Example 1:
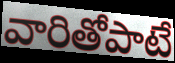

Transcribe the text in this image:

వారితోపాటే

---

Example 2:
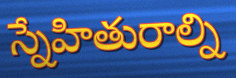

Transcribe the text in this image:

స్నేహితురాల్ని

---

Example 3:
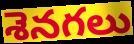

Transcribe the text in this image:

శెనగలు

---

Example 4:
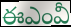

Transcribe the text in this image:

ఈఎంవీ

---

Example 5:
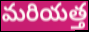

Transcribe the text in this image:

మరియత్త